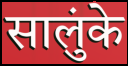
सालुंके